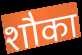
शौका